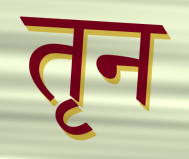
तृन